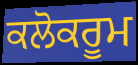
ਕਲੋਕਰੂਮ